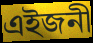
এইজনী